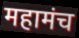
महामंच